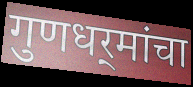
गुणधर्मांचा